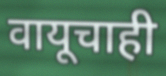
वायूचाही